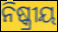
ନିଷ୍କ୍ରୀୟ